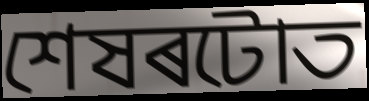
শেষৰটোত